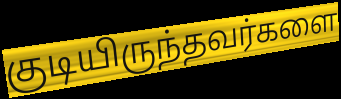
குடியிருந்தவர்களை